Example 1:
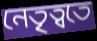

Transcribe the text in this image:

নেতৃত্বতে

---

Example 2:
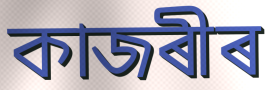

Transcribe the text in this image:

কাজৰীৰ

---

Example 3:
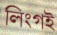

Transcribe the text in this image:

লিংগই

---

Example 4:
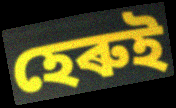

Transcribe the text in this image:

হেৰুই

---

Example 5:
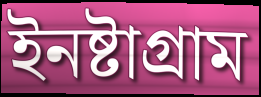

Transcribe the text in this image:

ইনষ্টাগ্ৰাম